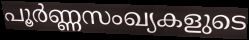
പൂർണ്ണസംഖ്യകളുടെ